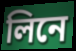
লিনে